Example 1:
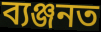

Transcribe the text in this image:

ব্যঞ্জনত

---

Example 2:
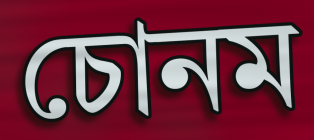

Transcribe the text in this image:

চোনম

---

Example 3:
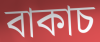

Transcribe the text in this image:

বাকাচ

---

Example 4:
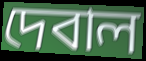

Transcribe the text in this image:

দেবাল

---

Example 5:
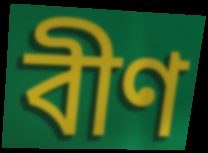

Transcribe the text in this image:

বীণ